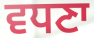
ਵਧਣਾ